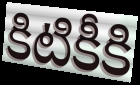
కిటికీకి